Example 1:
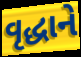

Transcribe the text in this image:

વૃદ્ધાને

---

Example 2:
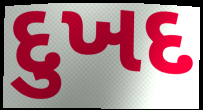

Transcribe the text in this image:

દુખદ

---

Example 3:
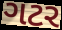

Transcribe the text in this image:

ગટર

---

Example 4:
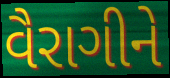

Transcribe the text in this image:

વૈરાગીને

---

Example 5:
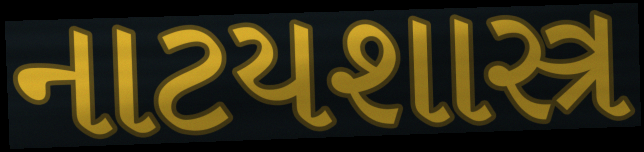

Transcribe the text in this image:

નાટયશાસ્ત્ર